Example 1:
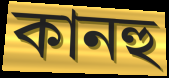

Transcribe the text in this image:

কানহু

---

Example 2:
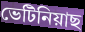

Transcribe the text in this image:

ভেটিনিয়াছ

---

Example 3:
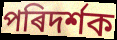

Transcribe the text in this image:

পৰিদৰ্শক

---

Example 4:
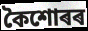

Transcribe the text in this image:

কৈশোৰৰ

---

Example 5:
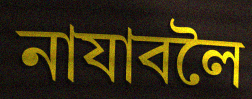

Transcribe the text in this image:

নাযাবলৈ